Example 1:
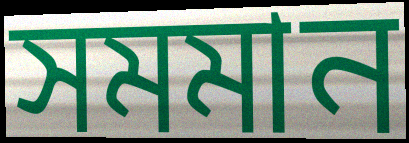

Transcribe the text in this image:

সমমান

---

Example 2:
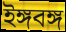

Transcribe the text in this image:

ইঙ্গবঙ্গ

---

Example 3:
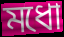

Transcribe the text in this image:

মধো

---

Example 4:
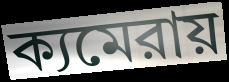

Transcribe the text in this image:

ক্যমেরায়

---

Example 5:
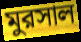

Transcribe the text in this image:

মুরসাল